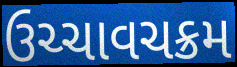
ઉચ્ચાવચક્રમ